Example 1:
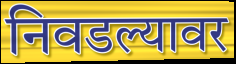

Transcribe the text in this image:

निवडल्यावर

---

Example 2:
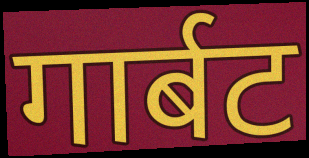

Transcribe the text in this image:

गार्बट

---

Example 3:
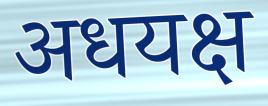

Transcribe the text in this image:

अधयक्ष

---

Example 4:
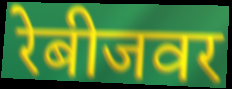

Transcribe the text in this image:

रेबीजवर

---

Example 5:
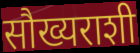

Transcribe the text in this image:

सौख्यराशी